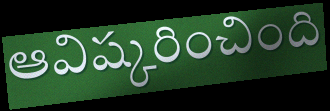
ఆవిష్కరించింది